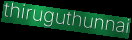
thiruguthunnai